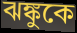
ঝঙ্কুকে